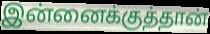
இன்னைக்குத்தான்